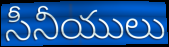
సీనీయులు